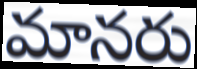
మానరు